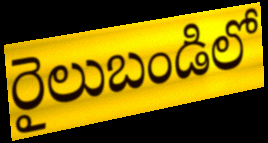
రైలుబండిలో